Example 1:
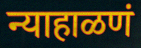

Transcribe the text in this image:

न्याहाळणं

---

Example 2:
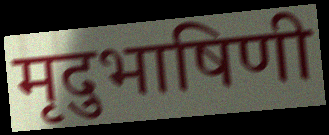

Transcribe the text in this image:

मृदुभाषिणी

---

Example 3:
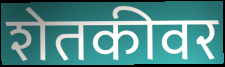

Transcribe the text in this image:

शेतकीवर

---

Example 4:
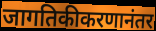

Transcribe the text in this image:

जागतिकीकरणानंतर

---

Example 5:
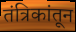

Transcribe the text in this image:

तंत्रिकांतून